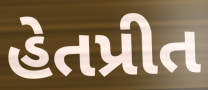
હેતપ્રીત